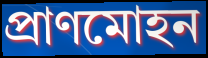
প্রাণমোহন